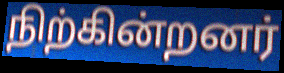
நிற்கின்றனர்